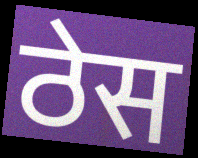
ठेस